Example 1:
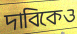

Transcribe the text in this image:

দাবিকেও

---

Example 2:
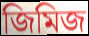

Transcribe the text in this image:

জিমিজ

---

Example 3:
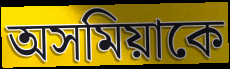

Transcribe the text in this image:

অসমিয়াকে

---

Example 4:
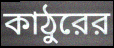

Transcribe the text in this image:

কাঠুরের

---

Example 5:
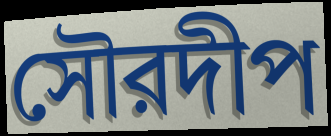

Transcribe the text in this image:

সৌরদীপ